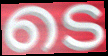
ടെ